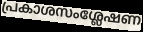
പ്രകാശസംശ്ലേഷണ